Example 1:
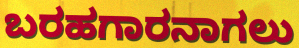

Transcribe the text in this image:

ಬರಹಗಾರನಾಗಲು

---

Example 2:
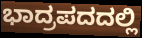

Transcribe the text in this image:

ಭಾದ್ರಪದದಲ್ಲಿ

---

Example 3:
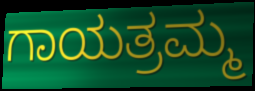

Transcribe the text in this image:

ಗಾಯತ್ರಮ್ಮ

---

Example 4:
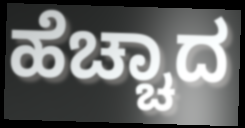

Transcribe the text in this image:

ಹೆಚ್ಚಾದ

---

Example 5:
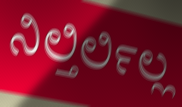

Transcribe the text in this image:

ನಿಲ್ತಿರ್ಲಿಲ್ಲ